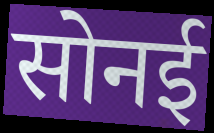
सोनई